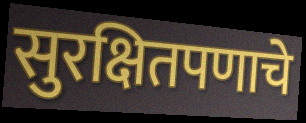
सुरक्षितपणाचे